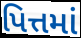
પિત્તમાં